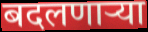
बदलणाऱ्या